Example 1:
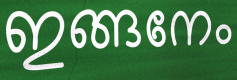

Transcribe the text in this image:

ഇങ്ങനേം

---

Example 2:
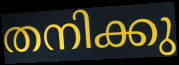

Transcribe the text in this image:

തനിക്കു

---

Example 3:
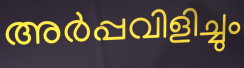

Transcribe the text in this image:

അർപ്പവിളിച്ചും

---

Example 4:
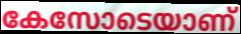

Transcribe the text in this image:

കേസോടെയാണ്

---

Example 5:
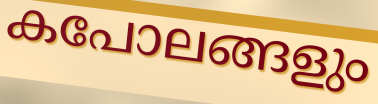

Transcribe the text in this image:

കപോലങ്ങളും